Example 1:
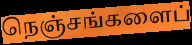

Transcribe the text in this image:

நெஞ்சங்களைப்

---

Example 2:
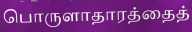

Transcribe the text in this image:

பொருளாதாரத்தைத்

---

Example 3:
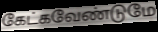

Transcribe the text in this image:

கேட்கவேண்டுமே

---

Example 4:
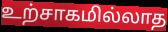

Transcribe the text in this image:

உற்சாகமில்லாத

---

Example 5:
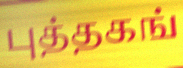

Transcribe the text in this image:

புத்தகங்